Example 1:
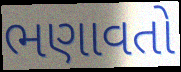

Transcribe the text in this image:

ભણાવતો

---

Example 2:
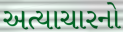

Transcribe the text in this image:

અત્યાચારનો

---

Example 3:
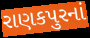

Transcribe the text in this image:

રાણકપુરનાં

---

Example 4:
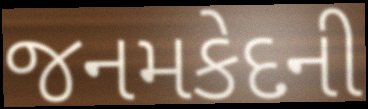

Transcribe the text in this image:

જનમકેદની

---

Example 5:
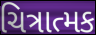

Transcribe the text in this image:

ચિત્રાત્મક